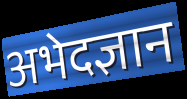
अभेदज्ञान